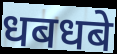
धबधबे